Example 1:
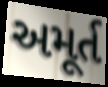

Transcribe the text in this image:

અમૂર્ત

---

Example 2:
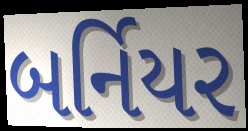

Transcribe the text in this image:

બર્નિયર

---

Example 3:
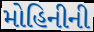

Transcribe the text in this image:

મોહિનીની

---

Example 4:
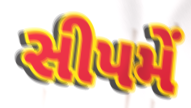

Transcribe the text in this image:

સીપમેં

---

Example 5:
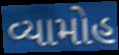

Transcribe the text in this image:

વ્યામોહ